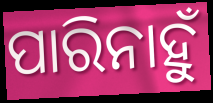
ପାରିନାହୁଁ